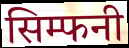
सिम्फनी